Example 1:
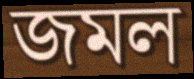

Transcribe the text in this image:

জমল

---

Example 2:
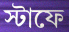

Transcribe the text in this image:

স্টাফে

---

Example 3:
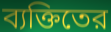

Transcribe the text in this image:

ব্যক্তিতের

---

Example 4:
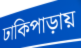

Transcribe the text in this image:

ঢাকিপাড়ায়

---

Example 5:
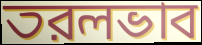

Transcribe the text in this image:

তরলভাব